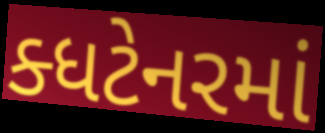
ક્ધટેનરમાં